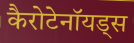
कैरोटेनॉयड्स